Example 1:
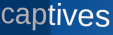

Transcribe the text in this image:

captives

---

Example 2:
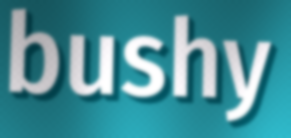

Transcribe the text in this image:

bushy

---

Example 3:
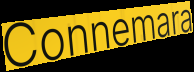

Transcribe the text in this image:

Connemara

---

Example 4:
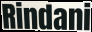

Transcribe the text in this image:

Rindani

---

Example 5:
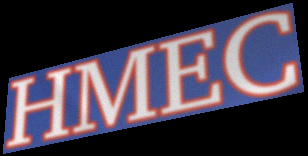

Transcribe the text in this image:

HMEC